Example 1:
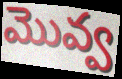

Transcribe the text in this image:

మొవ్వ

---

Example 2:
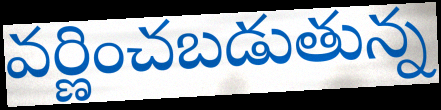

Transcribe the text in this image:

వర్ణించబడుతున్న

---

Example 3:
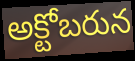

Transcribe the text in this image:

అక్టోబరున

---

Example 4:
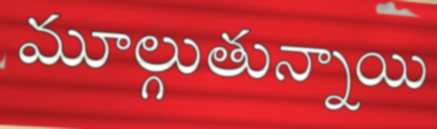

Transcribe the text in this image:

మూల్గుతున్నాయి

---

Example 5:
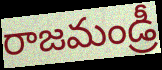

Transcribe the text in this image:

రాజమండ్రీ